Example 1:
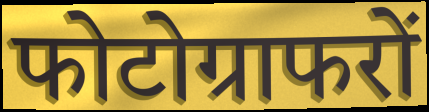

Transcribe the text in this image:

फोटोग्राफरों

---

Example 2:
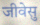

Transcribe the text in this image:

जीवेसु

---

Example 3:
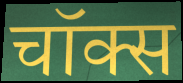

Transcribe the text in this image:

चॉक्स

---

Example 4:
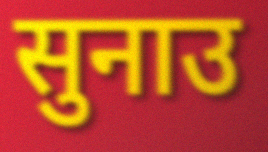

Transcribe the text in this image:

सुनाउ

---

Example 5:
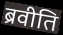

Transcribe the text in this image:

ब्रवीति